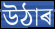
উঠাৰ